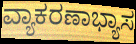
ವ್ಯಾಕರಣಾಭ್ಯಾಸ